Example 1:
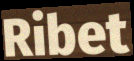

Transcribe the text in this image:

Ribet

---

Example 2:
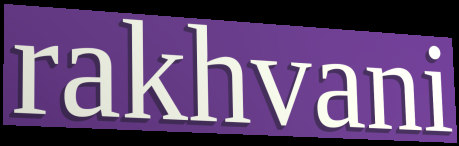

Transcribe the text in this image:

rakhvani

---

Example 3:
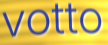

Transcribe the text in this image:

votto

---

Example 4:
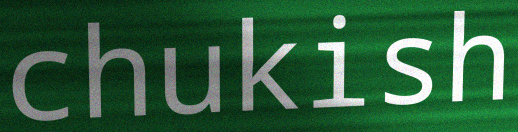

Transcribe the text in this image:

chukish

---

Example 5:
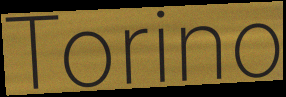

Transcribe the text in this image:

Torino